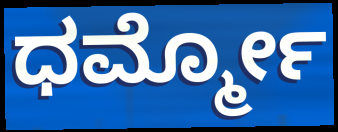
ಧರ್ಮ್ಮೋ